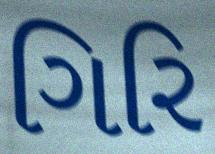
ગિરિ